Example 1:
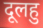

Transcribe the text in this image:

दूलहु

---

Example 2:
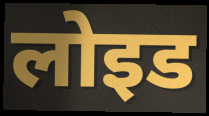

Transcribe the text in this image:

लोइड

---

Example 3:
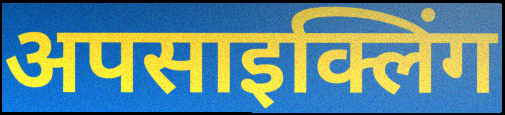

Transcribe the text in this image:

अपसाइक्लिंग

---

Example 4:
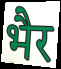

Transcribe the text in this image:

भैर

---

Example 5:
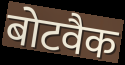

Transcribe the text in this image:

बोटवैक